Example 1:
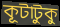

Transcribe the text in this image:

কূটাটুকু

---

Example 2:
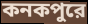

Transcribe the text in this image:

কনকপুরে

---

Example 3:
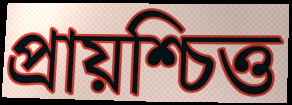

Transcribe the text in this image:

প্রায়শ্চিত্ত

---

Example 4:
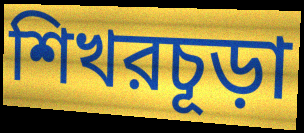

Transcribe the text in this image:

শিখরচূড়া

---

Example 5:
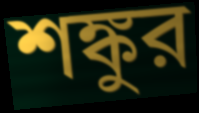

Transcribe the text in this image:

শঙ্কুর